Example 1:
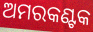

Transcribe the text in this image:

ଅମରକଣ୍ଟକ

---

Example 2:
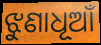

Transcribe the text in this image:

ଝୁଣାଧୂଆଁ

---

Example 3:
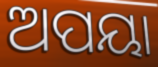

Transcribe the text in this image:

ଅପୟା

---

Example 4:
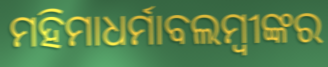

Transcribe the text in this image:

ମହିମାଧର୍ମାବଲମ୍ବୀଙ୍କର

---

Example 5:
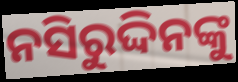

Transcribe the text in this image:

ନସିରୁଦ୍ଦିନଙ୍କୁ